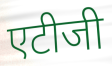
एटीजी